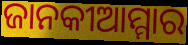
ଜାନକୀଆମ୍ମାର